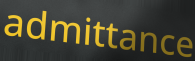
admittance